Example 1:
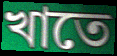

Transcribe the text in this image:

খাতে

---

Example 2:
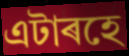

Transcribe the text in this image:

এটাৰহে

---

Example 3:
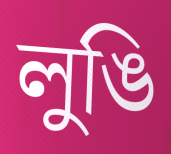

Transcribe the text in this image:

লুঙি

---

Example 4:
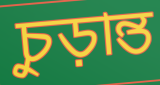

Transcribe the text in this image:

চুড়ান্ত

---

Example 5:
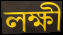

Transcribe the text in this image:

লক্ষী